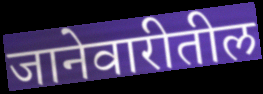
जानेवारीतील